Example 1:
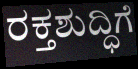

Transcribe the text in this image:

ರಕ್ತಶುದ್ಧಿಗೆ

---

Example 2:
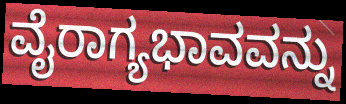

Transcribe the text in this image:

ವೈರಾಗ್ಯಭಾವವನ್ನು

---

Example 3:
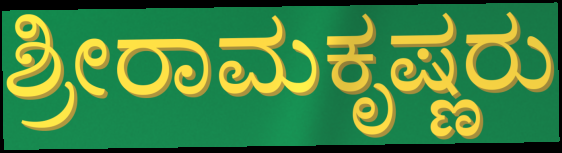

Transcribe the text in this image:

ಶ್ರೀರಾಮಕೃಷ್ಣರು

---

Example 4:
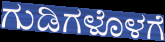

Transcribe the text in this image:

ಗುಡಿಗಳೊಳಗೆ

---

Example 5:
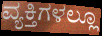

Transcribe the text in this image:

ವ್ಯಕ್ತಿಗಳಲ್ಲೂ